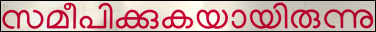
സമീപിക്കുകയായിരുന്നു